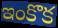
ఇంకొక